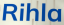
Rihla